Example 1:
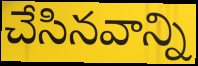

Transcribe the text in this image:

చేసినవాన్ని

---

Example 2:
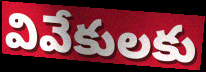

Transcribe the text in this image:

వివేకులకు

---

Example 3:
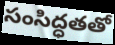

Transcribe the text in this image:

సంసిద్ధతతో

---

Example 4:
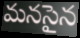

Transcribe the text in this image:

మనసైన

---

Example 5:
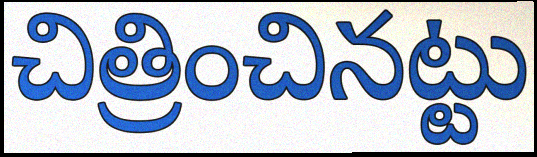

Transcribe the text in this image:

చిత్రించినట్టు